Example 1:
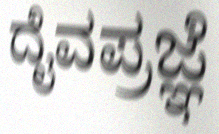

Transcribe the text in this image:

ದೈವಪ್ರಜ್ಞೆ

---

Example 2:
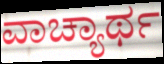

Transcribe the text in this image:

ವಾಚ್ಯಾರ್ಥ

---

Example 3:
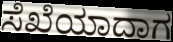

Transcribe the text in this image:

ಸೆಖೆಯಾದಾಗ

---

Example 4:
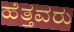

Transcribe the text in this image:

ಹೆತ್ತವರು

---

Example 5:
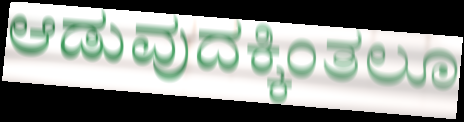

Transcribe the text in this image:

ಆಡುವುದಕ್ಕಿಂತಲೂ